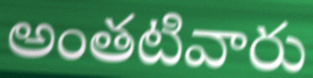
అంతటివారు